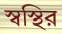
স্বস্থির